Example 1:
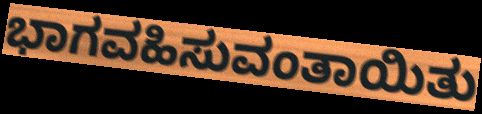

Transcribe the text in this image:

ಭಾಗವಹಿಸುವಂತಾಯಿತು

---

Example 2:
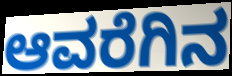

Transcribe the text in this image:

ಆವರೆಗಿನ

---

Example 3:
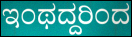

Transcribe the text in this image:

ಇಂಥದ್ದರಿಂದ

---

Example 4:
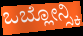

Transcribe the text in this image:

ಒಬ್ಲೋನ್ಸ್ಕಿ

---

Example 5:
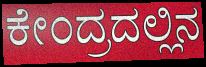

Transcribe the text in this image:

ಕೇಂದ್ರದಲ್ಲಿನ